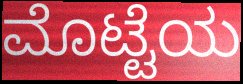
ಮೊಟ್ಟೆಯ